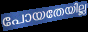
പോയതേയില്ല